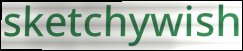
sketchywish